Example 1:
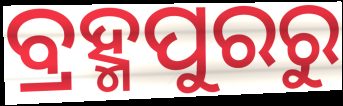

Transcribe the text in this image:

ବ୍ରହ୍ମପୁରରୁ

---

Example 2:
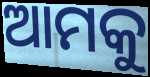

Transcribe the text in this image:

ଆମକୁ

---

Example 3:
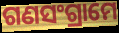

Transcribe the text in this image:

ଗଣସଂଗ୍ରାମେ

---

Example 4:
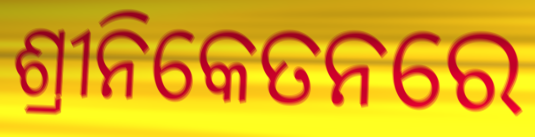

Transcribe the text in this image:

ଶ୍ରୀନିକେତନରେ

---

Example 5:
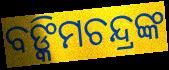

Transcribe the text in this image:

ବଙ୍କିମଚନ୍ଦ୍ରଙ୍କ